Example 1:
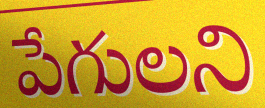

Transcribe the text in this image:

పేగులని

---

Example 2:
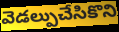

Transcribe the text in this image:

వెడల్పుచేసికొని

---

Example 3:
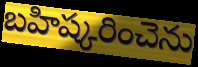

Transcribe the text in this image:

బహిష్కరించెను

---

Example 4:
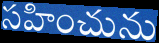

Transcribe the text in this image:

సహించును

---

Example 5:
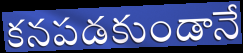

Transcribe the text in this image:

కనపడకుండానే